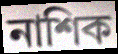
নাশিক